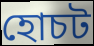
হোচট